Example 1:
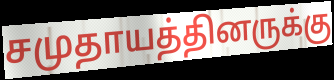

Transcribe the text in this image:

சமுதாயத்தினருக்கு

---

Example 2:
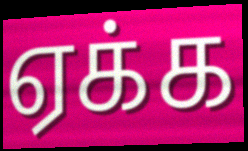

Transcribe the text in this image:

ஏக்க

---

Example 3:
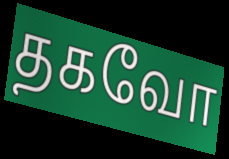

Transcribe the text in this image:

தகவோ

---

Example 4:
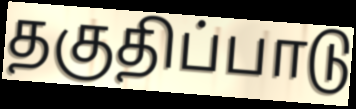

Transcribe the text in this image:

தகுதிப்பாடு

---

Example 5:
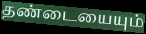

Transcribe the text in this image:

தண்டையையும்